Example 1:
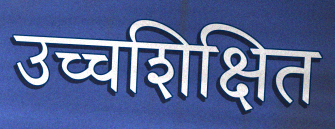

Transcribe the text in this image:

उच्चशिक्षित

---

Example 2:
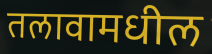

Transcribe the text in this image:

तलावामधील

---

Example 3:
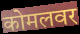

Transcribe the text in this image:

कोमलवर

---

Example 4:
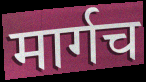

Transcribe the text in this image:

मार्गच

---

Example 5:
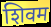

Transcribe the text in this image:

शिवम